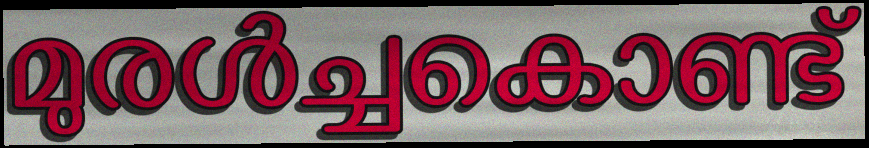
മുരൾച്ചകൊണ്ട്